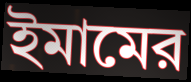
ইমামের